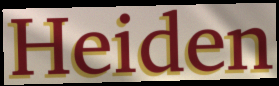
Heiden